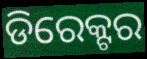
ଡିରେକ୍ଟର